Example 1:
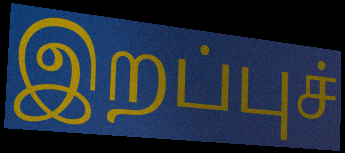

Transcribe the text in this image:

இறப்புச்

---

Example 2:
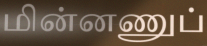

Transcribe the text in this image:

மின்னணுப்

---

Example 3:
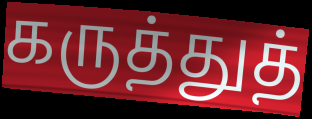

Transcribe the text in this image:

கருத்துத்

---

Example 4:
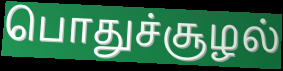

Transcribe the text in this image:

பொதுச்சூழல்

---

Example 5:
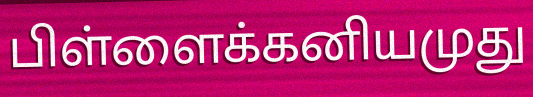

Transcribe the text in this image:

பிள்ளைக்கனியமுது